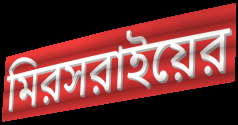
মিরসরাইয়ের